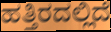
ಹತ್ತಿರದಲ್ಲಿದೆ